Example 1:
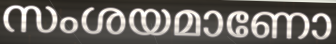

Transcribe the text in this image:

സംശയമാണോ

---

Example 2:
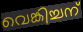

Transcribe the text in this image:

വെങ്കിച്ചന്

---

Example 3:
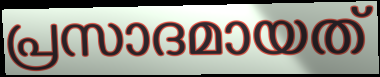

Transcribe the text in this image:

പ്രസാദമായത്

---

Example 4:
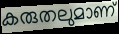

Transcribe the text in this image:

കരുതലുമാണ്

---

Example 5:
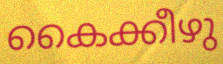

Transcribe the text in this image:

കൈക്കീഴു